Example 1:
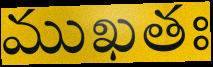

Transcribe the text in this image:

ముఖతః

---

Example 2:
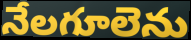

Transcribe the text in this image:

నేలగూలెను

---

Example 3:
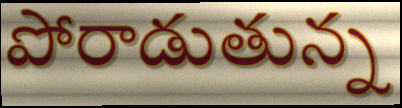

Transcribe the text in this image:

పోరాడుతున్న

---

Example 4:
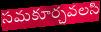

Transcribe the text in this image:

సమకూర్చవలసి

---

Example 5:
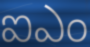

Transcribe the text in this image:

ఐఎం